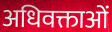
अधिवक्ताओं